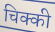
चिक्की